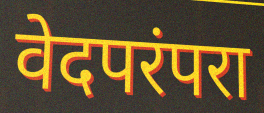
वेदपरंपरा